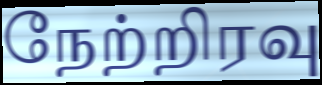
நேற்றிரவு